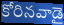
కోరినవాడై